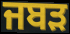
ਜਬੜ